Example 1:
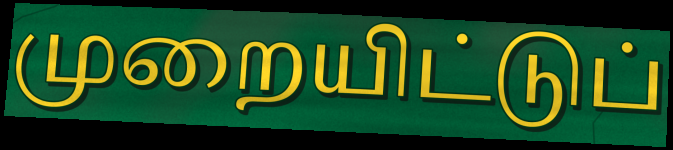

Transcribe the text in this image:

முறையிட்டுப்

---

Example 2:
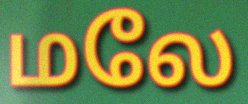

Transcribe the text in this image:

மலே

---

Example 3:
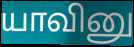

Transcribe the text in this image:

யாவினு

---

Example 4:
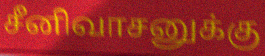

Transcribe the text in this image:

சீனிவாசனுக்கு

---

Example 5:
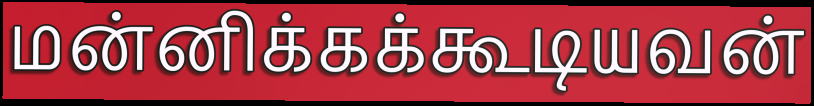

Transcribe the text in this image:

மன்னிக்கக்கூடியவன்